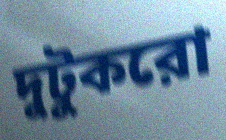
দুটুকরো